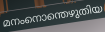
മനംനൊന്തെഴുതിയ